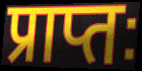
प्राप्तः